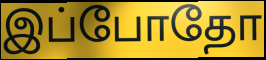
இப்போதோ